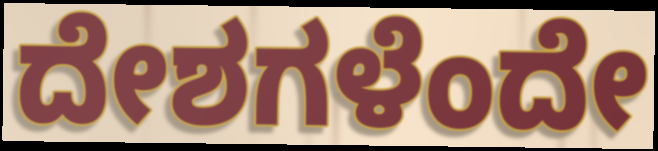
ದೇಶಗಳೆಂದೇ